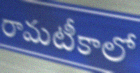
రామటీకాలో